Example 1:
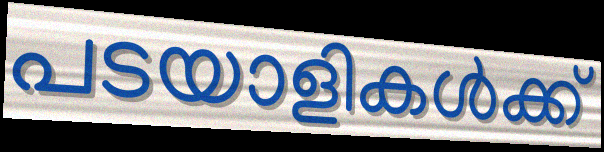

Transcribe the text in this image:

പടയാളികൾക്ക്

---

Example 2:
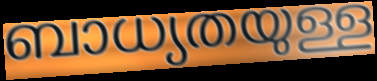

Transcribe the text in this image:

ബാധ്യതയുള്ള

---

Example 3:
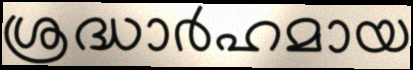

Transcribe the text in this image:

ശ്രദ്ധാർഹമായ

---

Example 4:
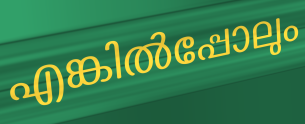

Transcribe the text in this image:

എങ്കിൽപ്പോലും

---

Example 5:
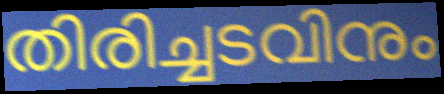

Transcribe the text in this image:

തിരിച്ചടവിനും